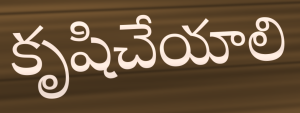
కృషిచేయాలి